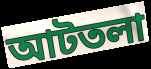
আটতলা